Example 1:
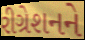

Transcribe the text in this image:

રીગ્રેશનને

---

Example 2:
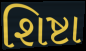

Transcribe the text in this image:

શિષ્ટા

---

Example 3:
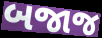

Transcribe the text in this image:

બજાજ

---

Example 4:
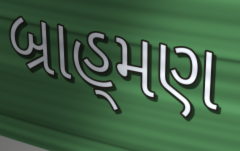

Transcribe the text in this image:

બ્રાહ્‌મણ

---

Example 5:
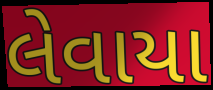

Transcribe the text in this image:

લેવાયા